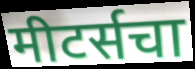
मीटर्सचा